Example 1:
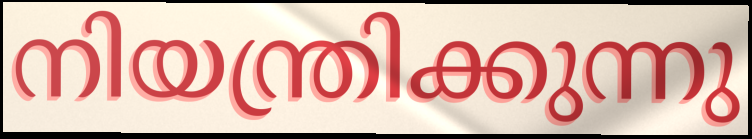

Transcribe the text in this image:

നിയന്ത്രിക്കുന്നു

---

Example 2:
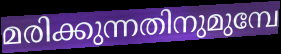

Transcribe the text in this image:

മരിക്കുന്നതിനുമുമ്പേ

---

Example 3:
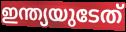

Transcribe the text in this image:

ഇന്ത്യയുടേത്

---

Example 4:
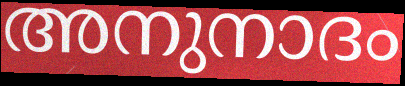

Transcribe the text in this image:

അനുനാദം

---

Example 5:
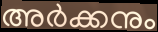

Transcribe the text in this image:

അർക്കനും